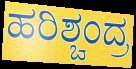
ಹರಿಶ್ಚಂದ್ರ